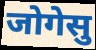
जोगेसु